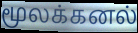
மூலக்கனல்